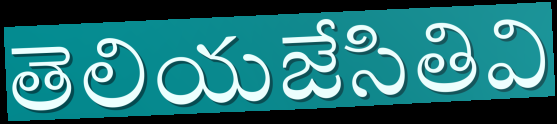
తెలియజేసితివి